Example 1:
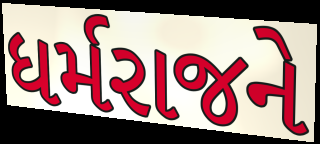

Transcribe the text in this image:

ધર્મરાજને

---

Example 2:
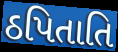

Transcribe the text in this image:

ઠપિતાતિ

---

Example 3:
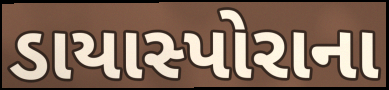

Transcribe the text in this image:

ડાયાસ્પોરાના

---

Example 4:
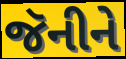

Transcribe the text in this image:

જૅનીને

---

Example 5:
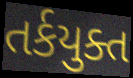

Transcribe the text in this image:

તર્કયુક્ત